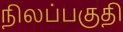
நிலப்பகுதி